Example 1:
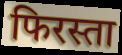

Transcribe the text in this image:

फिरस्ता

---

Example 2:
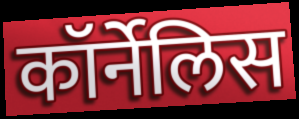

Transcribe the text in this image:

कॉर्नेलिस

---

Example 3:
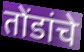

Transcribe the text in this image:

तोंडांचे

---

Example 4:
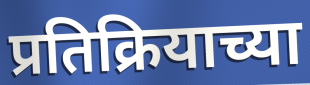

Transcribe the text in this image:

प्रतिक्रियाच्या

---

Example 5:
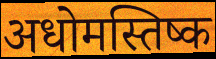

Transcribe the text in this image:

अधोमस्तिष्क